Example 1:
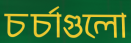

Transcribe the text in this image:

চর্চাগুলো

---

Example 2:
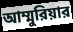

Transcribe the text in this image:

আম্মুরিয়ার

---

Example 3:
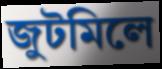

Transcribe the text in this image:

জুটমিলে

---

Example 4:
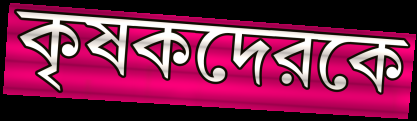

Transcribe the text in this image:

কৃষকদেরকে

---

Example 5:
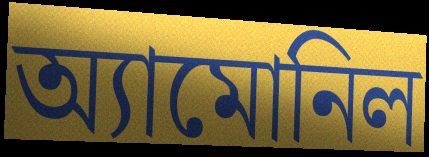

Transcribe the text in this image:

অ্যামোনিল